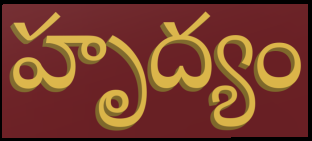
హృద్యం